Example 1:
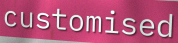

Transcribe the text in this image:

customised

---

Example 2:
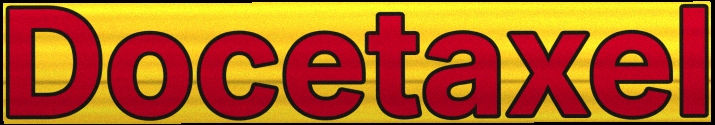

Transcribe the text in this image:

Docetaxel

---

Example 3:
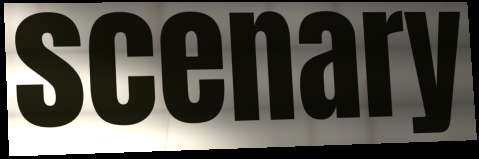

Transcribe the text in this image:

scenary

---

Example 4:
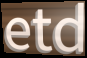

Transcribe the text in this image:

etd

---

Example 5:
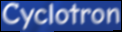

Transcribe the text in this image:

Cyclotron